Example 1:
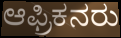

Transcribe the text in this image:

ಆಫ್ರಿಕನರು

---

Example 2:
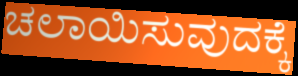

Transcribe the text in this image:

ಚಲಾಯಿಸುವುದಕ್ಕೆ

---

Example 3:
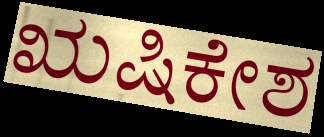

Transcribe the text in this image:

ಋಷಿಕೇಶ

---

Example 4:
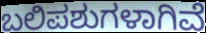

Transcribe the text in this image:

ಬಲಿಪಶುಗಳಾಗಿವೆ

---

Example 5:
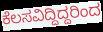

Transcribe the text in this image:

ಕೆಲಸವಿದ್ದಿದ್ದರಿಂದ